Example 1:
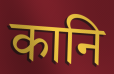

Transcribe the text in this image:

कानि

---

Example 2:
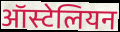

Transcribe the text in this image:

ऑस्टेलियन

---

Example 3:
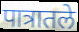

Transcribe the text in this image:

पात्रातले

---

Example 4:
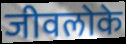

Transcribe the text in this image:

जीवलोके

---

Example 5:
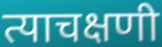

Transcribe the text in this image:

त्याचक्षणी